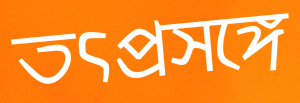
তৎপ্রসঙ্গে